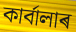
কাৰ্বালাৰ